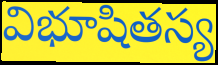
విభూషితస్య